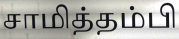
சாமித்தம்பி